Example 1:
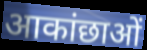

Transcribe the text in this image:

आकांछाओं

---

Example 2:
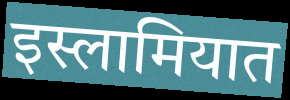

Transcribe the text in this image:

इस्लामियात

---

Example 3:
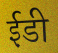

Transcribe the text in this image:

ई़डी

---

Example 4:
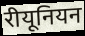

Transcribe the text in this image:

रीयूनियन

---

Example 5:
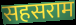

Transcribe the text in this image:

सहसराम